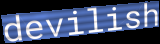
devilish